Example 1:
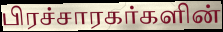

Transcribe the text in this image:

பிரச்சாரகர்களின்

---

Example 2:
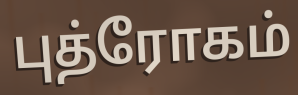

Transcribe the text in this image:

புத்ரோகம்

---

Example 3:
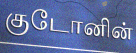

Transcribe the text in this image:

குடோனின்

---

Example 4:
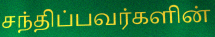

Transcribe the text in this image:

சந்திப்பவர்களின்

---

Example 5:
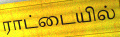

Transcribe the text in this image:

ராட்டையில்